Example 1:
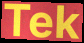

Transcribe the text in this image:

Tek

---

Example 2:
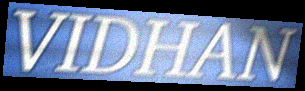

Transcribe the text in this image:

VIDHAN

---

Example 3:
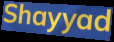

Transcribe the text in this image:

Shayyad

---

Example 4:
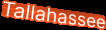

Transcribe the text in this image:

Tallahassee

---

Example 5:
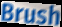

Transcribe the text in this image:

Brush